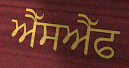
ਐੱਸਐੱਫ